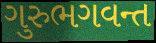
ગુરુભગવન્ત